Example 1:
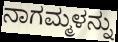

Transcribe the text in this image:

ನಾಗಮ್ಮಳನ್ನು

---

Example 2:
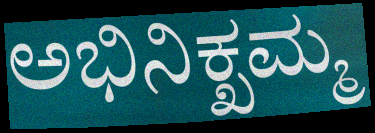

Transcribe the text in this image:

ಅಭಿನಿಕ್ಖಮ್ಮ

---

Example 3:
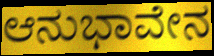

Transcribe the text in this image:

ಆನುಭಾವೇನ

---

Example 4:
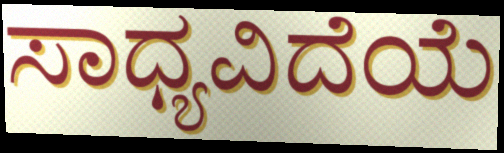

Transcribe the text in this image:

ಸಾಧ್ಯವಿದೆಯೆ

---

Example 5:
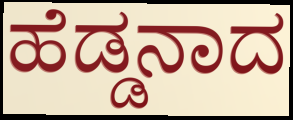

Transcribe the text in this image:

ಹೆಡ್ಡನಾದ